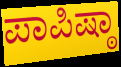
ಪಾಪಿಷ್ಠಾ